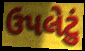
ઉપલેટું